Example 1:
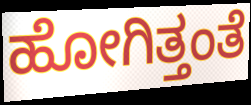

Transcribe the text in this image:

ಹೋಗಿತ್ತಂತೆ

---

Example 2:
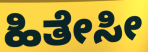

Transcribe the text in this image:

ಹಿತೇಸೀ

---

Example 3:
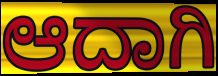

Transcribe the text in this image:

ಆದಾಗಿ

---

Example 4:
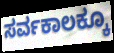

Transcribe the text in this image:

ಸರ್ವಕಾಲಕ್ಕೂ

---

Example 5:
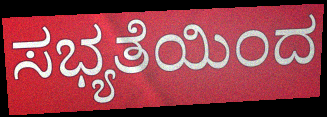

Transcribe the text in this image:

ಸಭ್ಯತೆಯಿಂದ